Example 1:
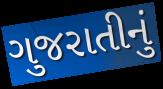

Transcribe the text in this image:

ગુજરાતીનું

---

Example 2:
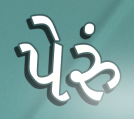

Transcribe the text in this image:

પેરું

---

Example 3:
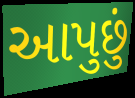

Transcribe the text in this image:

આપુછું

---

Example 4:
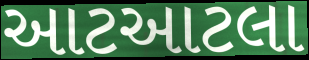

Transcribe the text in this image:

આટઆટલા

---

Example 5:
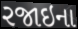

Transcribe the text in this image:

રજાઇના